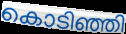
കൊടിഞ്ഞി